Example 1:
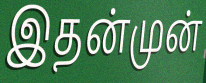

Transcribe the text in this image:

இதன்முன்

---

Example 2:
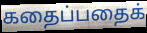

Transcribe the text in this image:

கதைப்பதைக்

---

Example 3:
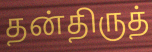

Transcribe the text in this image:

தன்திருத்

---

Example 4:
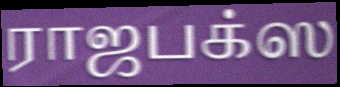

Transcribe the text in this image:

ராஜபக்ஸ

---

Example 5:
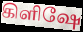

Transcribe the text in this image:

கிளிஷே